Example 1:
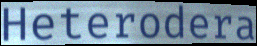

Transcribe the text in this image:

Heterodera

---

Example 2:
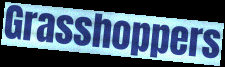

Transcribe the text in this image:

Grasshoppers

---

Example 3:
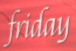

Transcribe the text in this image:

friday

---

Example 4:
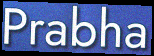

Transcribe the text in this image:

Prabha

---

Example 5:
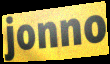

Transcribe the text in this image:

jonno